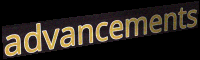
advancements